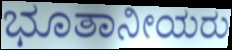
ಭೂತಾನೀಯರು